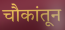
चौकांतून